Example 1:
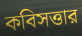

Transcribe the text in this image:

কবিসত্তার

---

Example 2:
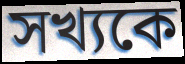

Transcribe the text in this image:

সখ্যকে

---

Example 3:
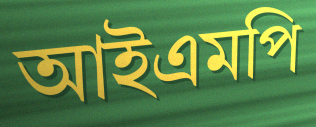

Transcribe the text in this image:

আইএমপি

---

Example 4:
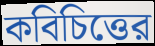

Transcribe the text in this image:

কবিচিত্তের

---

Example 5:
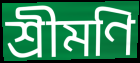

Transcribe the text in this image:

শ্রীমণি